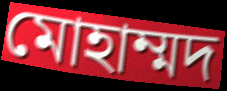
মোহাম্মদ